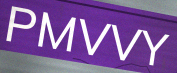
PMVVY